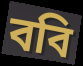
ববি